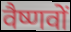
वैष्णवों